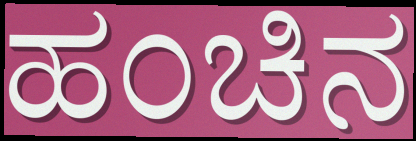
ಹಂಚಿನ